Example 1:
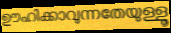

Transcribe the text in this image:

ഊഹിക്കാവുന്നതേയുള്ളൂ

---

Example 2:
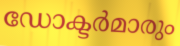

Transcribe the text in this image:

ഡോക്ടർമാരും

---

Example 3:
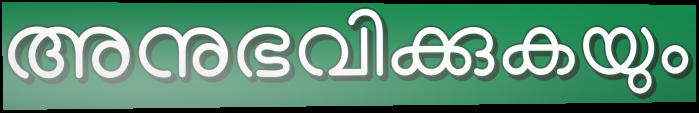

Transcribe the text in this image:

അനുഭവിക്കുകയും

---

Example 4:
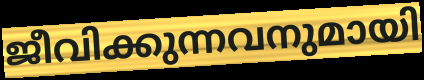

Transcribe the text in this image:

ജീവിക്കുന്നവനുമായി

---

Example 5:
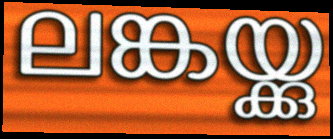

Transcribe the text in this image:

ലങ്കയ്ക്കു